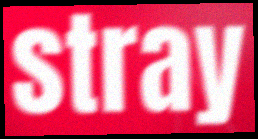
stray